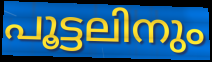
പൂട്ടലിനും